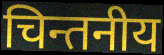
चिन्तनीय